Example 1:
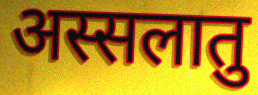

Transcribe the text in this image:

अस्सलातु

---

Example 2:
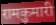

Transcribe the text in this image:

रामकुमारी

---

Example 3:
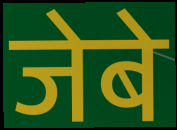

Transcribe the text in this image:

जेबे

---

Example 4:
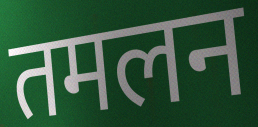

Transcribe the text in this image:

तमलन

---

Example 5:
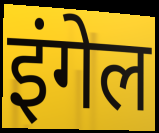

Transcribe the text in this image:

इंगेल